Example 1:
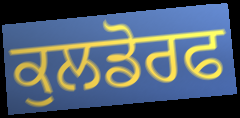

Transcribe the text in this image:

ਕੁਲਡੋਰਫ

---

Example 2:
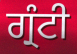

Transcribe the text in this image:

ਗ੍ਰੰਟੀ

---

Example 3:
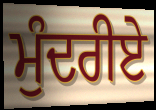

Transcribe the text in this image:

ਮੁੰਦਰੀਏ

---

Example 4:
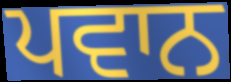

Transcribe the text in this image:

ਪਵਾਨ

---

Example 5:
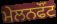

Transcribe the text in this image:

ਮੇਲਨਫੌਂਟ